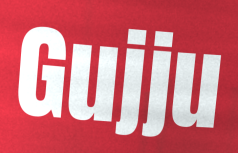
Gujju